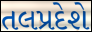
તલપ્રદેશે